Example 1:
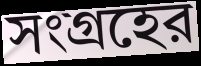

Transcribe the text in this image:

সংগ্রহের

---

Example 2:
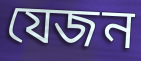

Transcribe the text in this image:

যেজন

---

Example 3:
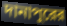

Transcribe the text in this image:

দানাপুরের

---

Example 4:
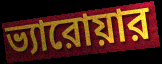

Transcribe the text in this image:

ভ্যারোয়ার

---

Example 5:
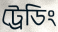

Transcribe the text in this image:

ট্রেডিং